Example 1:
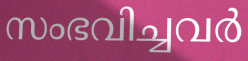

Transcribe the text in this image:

സംഭവിച്ചവർ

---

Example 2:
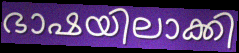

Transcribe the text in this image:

ഭാഷയിലാക്കി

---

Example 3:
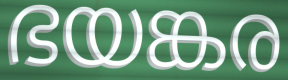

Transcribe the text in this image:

ഭയങ്കര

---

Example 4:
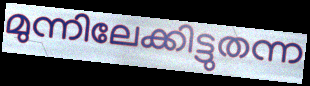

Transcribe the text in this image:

മുന്നിലേക്കിട്ടുതന്ന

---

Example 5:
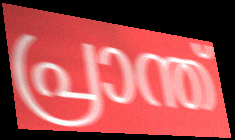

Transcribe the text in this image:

പ്രാന്ത്